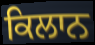
ਕਿਲਾਨ